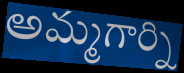
అమ్మగార్ని